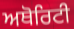
ਅਥੋਰਿਟੀ